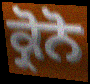
ਕ੍ਰੋਨੋ